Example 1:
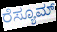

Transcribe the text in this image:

ರೆಸ್ಯೂಮ್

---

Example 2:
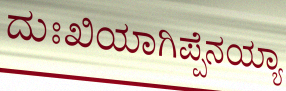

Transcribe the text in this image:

ದುಃಖಿಯಾಗಿಪ್ಪೆನಯ್ಯಾ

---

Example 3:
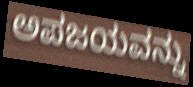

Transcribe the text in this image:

ಅಪಜಯವನ್ನು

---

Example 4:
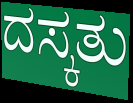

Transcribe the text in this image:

ದಸ್ಕತು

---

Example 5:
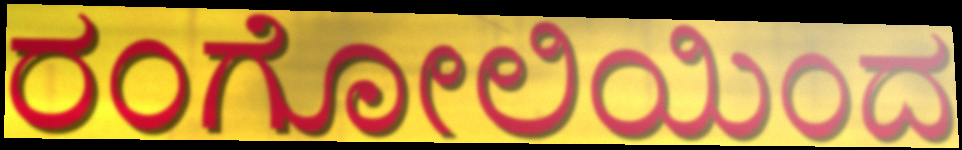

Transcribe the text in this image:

ರಂಗೋಲಿಯಿಂದ